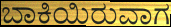
ಬಾಕಿಯಿರುವಾಗ